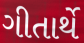
ગીતાર્થે